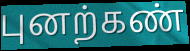
புனற்கண்